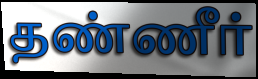
தண்ணீர்